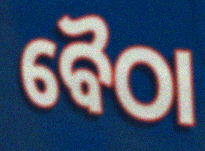
ବୈଠା